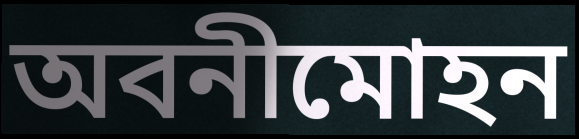
অবনীমোহন